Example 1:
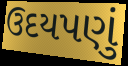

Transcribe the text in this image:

ઉદયપણું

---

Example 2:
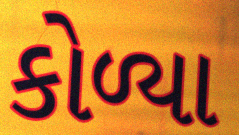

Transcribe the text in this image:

કોળ્યા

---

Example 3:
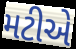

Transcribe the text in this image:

મટીએ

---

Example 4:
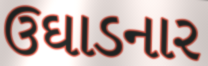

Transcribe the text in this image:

ઉઘાડનાર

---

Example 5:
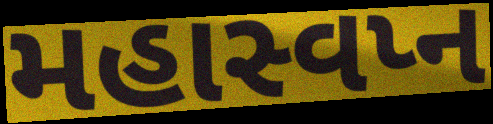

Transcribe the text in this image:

મહાસ્વપ્ન